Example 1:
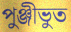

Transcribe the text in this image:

পুঞ্জীভুত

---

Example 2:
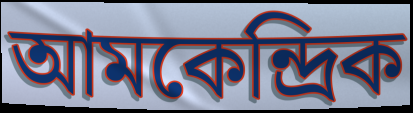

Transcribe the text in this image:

আমকেন্দ্রিক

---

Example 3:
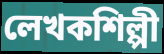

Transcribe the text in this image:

লেখকশিল্পী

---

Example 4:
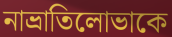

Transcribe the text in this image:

নাভ্রাতিলোভাকে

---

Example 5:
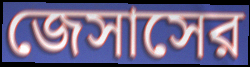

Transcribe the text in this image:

জেসাসের